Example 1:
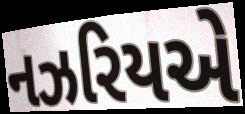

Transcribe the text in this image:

નઝરિયએ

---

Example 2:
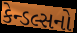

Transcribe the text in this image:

કેન્ડલ્સનો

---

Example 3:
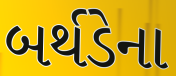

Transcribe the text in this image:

બર્થડેના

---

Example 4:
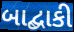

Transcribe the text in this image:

બાદ્બાકી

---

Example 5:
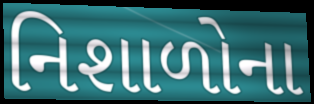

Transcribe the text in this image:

નિશાળોના